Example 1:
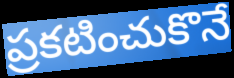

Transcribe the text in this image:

ప్రకటించుకొనే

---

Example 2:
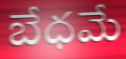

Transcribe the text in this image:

బేధమే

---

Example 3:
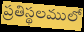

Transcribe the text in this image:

ప్రతిస్థలములో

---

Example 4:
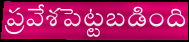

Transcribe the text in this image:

ప్రవేశపెట్టబడింది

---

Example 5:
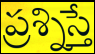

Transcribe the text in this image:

ప్రశ్నిస్తే